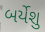
બર્યેશુ